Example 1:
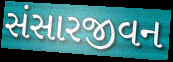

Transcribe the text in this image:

સંસારજીવન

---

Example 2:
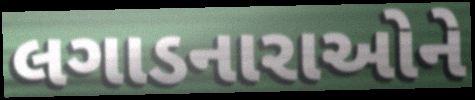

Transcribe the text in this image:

લગાડનારાઓને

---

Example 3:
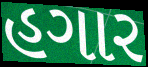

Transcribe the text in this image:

હગાર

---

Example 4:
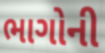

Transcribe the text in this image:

ભાગોની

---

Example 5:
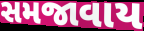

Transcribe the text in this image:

સમજાવાય